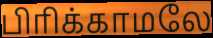
பிரிக்காமலே